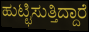
ಹುಟ್ಟಿಸುತ್ತಿದ್ದಾರೆ